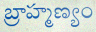
బ్రాహ్మణ్యం